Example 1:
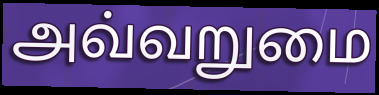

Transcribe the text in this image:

அவ்வறுமை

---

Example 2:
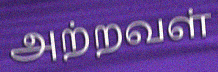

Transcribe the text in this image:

அற்றவள்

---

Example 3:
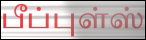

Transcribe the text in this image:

பீப்புள்ஸ்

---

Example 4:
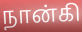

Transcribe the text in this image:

நான்கி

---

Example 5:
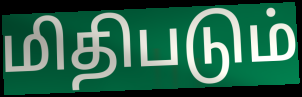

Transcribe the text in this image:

மிதிபடும்